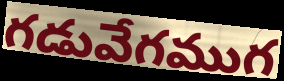
గడువేగముగ